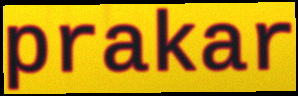
prakar